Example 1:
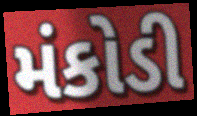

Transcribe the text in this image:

મંકોડી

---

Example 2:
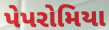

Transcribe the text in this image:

પેપરોમિયા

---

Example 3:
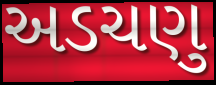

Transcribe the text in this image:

અડચણુ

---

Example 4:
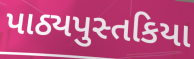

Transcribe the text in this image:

પાઠ્યપુસ્તકિયા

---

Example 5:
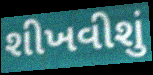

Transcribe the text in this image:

શીખવીશું